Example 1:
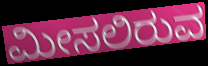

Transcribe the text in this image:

ಮೀಸಲಿರುವ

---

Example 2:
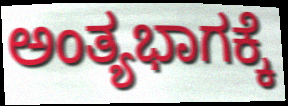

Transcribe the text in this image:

ಅಂತ್ಯಭಾಗಕ್ಕೆ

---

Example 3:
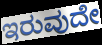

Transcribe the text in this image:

ಇರುವುದೇ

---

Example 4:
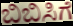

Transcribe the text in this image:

ಬಿಬಿಸಿಗೆ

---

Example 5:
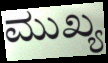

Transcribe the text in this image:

ಮುಖ್ಯ